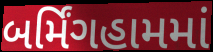
બર્મિંગહામમાં